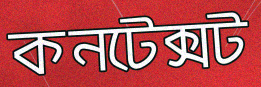
কনটেক্সট